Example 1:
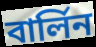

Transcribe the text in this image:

বাৰ্লিন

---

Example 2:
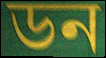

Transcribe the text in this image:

ডন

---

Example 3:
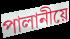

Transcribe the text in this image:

পালানীয়ে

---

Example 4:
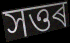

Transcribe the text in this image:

সত্তৰ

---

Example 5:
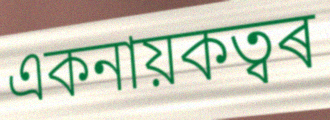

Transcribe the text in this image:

একনায়কত্বৰ